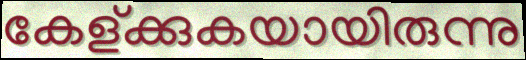
കേള്ക്കുകയായിരുന്നു